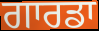
ਗਾਰਡਾ